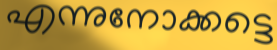
എന്നുനോക്കട്ടെ